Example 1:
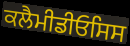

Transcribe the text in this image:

ਕਲੈਮੀਡੀਓਸਿਸ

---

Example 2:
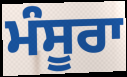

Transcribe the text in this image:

ਮੰਸੂਰਾ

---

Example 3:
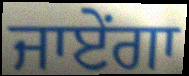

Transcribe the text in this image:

ਜਾਏਂਗਾ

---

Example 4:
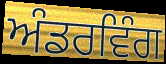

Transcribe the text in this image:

ਅੰਡਰਵਿੰਗ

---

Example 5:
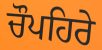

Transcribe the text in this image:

ਚੌਪਹਿਰੇ